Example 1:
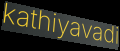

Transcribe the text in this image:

kathiyavadi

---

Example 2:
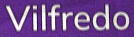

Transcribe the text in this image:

Vilfredo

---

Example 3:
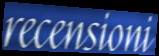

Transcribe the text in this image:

recensioni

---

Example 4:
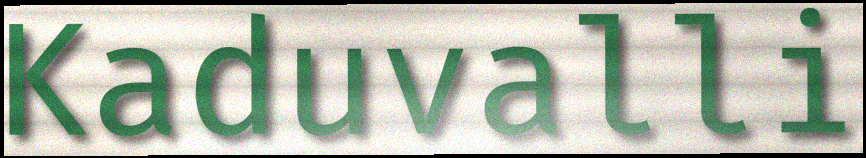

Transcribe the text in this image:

Kaduvalli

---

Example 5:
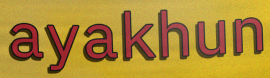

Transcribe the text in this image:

ayakhun